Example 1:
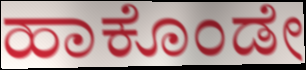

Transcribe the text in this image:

ಹಾಕೊಂಡೇ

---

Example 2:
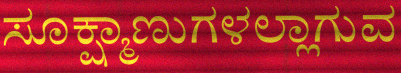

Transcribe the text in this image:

ಸೂಕ್ಷ್ಮಾಣುಗಳಲ್ಲಾಗುವ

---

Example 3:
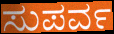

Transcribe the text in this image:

ಸುಪರ್ವ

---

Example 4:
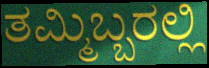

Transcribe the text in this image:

ತಮ್ಮಿಬ್ಬರಲ್ಲಿ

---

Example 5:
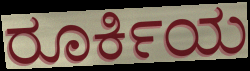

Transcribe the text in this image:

ರೂರ್ಕಿಯ